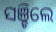
ସଞ୍ଚିଲେ